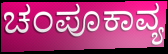
ಚಂಪೂಕಾವ್ಯ